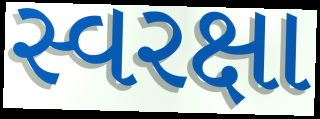
સ્વરક્ષા